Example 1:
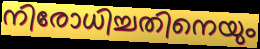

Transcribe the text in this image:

നിരോധിച്ചതിനെയും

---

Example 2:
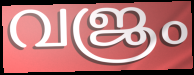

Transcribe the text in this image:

വജ്രം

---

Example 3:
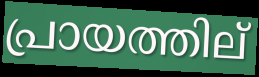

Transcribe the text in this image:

പ്രായത്തില്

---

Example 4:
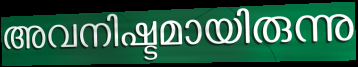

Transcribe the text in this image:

അവനിഷ്ടമായിരുന്നു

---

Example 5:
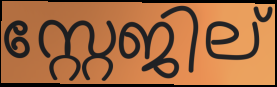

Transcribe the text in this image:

സ്റ്റേജില്